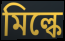
মিল্কে